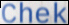
Chek